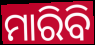
ମାରିବି